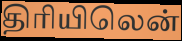
திரியிலென்